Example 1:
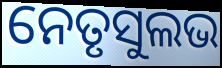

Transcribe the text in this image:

ନେତୃସୁଲଭ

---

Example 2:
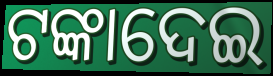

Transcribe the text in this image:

ଟଙ୍କାଦେଇ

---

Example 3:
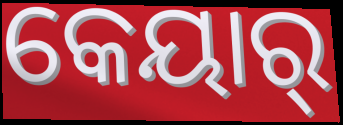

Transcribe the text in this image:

କେୟାର୍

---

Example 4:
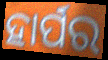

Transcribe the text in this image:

ହାର୍ପର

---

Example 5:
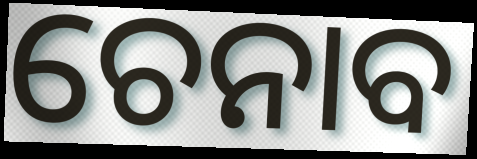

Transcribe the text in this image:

ଚେନାବ